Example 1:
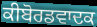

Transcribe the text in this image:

ਕੀਬੋਰਡਵਾਦਕ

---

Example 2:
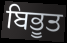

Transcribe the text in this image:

ਬਿਭੂਤ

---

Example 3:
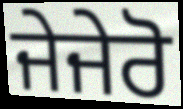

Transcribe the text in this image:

ਜੇਜੇਰੋ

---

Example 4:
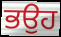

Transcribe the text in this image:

ਭਉਹ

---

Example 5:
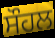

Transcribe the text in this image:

ਸੌਹਲ